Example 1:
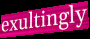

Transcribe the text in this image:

exultingly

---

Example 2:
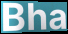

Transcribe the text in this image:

Bha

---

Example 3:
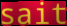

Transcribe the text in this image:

sait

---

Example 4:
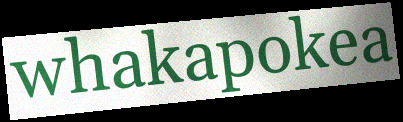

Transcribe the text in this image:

whakapokea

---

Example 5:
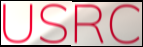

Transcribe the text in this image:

USRC